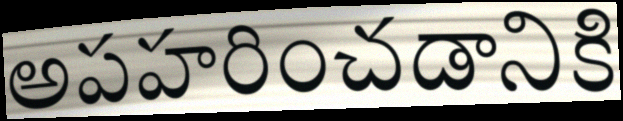
అపహరించడానికి